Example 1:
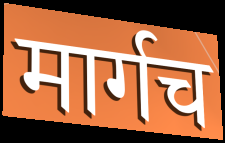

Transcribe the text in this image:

मार्गच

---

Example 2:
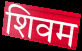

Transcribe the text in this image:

शिवम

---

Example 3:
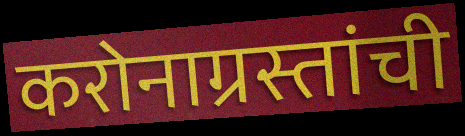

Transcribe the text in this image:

करोनाग्रस्तांची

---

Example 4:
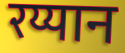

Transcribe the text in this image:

रय्यान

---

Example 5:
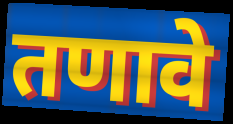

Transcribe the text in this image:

तणावे